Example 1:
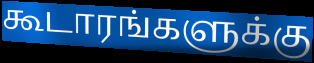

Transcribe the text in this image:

கூடாரங்களுக்கு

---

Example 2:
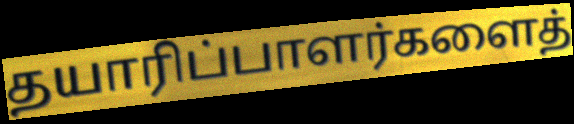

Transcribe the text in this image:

தயாரிப்பாளர்களைத்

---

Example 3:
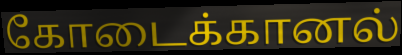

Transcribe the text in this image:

கோடைக்கானல்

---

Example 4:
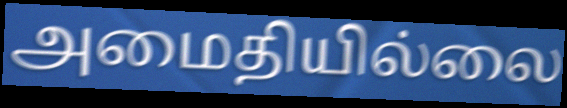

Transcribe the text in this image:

அமைதியில்லை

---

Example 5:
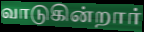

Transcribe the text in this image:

வாடுகின்றார்